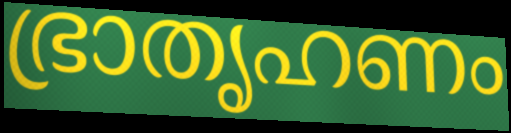
ഭ്രാതൃഹണം